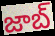
జాబ్